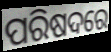
ପରିଷଦରେ